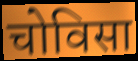
चोविसा